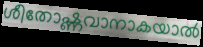
ശീതോഷ്ണവാനാകയാൽ